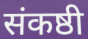
संकष्ठी